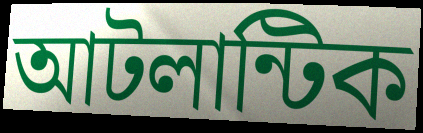
আটলান্টিক